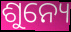
ଶୁନ୍ୟେ